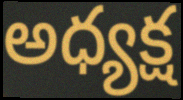
అధ్యక్ష